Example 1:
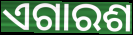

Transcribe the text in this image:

ଏଗାରଶ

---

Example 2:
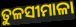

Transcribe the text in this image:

ତୁଳସୀମାଳା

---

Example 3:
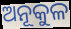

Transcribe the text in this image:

ଅନୂକୁଳ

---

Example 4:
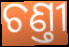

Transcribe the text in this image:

ଚଣ୍ତୀ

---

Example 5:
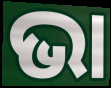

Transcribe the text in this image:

ଭା